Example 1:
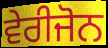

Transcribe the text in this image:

ਵੇਰੀਜੋਨ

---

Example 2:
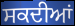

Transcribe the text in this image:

ਸਕਦੀਆਂ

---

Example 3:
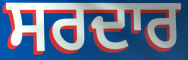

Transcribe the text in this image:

ਸਰਦਾਰ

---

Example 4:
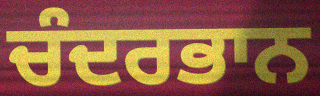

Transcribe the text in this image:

ਚੰਦਰਭਾਨ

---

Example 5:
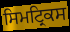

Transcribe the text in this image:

ਸਿਮਟ੍ਰਿਕਸ